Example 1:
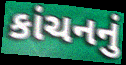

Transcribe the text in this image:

કાંચનનું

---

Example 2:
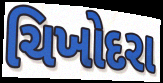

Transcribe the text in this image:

ચિખોદરા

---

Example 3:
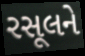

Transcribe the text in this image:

રસૂલને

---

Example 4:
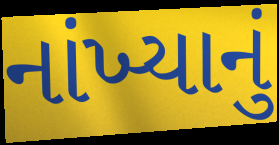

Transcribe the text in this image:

નાંખ્યાનું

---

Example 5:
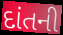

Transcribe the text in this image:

દાંતની